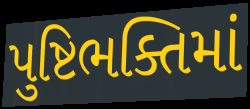
પુષ્ટિભક્તિમાં